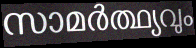
സാമർത്ഥ്യവും